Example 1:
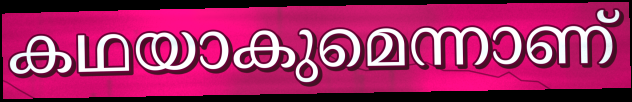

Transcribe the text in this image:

കഥയാകുമെന്നാണ്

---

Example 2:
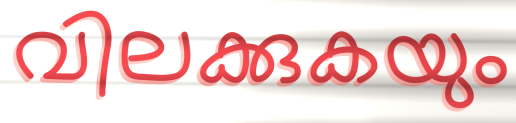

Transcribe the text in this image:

വിലക്കുകയും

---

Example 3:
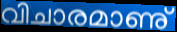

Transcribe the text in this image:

വിചാരമാണു്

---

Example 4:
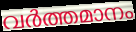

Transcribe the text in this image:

വർത്തമാനം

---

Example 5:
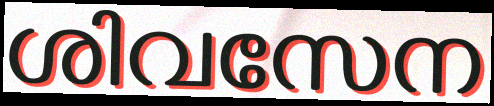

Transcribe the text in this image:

ശിവസേന